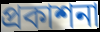
প্ৰকাশনা